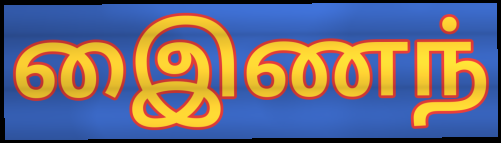
இைணந்